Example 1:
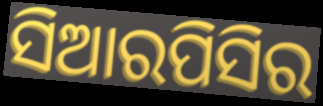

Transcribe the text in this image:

ସିଆରପିସିର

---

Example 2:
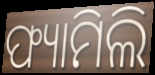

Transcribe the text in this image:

ଫ୍ୟାମିଲି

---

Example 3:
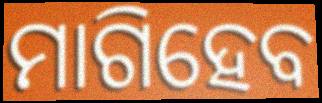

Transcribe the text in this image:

ମାଗିହେବ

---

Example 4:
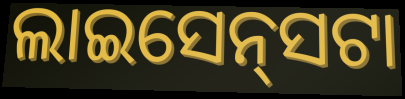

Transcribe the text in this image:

ଲାଇସେନ୍‍ସଟା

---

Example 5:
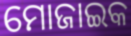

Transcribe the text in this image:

ମୋଜାଇକ